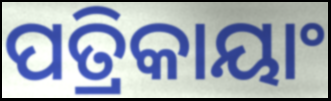
ପତ୍ରିକାୟାଂ